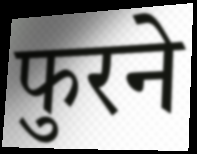
फुरने